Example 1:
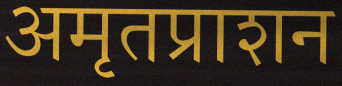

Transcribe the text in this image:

अमृतप्राशन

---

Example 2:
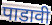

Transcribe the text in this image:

पाडावी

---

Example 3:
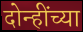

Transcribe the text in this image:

दोन्हींच्या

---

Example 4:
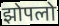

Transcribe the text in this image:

झोपलो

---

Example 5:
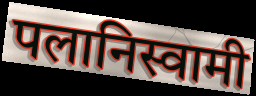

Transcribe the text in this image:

पलानिस्वामी